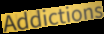
Addictions